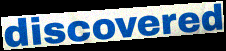
discovered